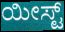
ಯೀಸ್ಟ್